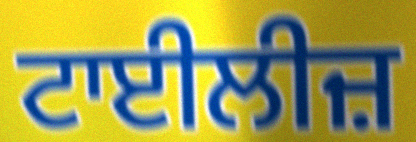
ਟਾਈਲੀਜ਼